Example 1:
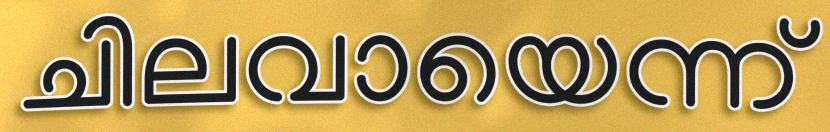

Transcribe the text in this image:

ചിലവായെന്ന്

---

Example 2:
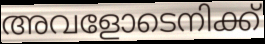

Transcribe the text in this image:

അവളോടെനിക്ക്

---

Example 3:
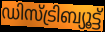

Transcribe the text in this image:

ഡിസ്ട്രിബ്യൂട്ട്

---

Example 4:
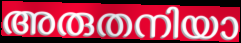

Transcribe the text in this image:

അരുതനിയാ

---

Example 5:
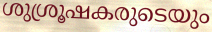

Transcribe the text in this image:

ശുശ്രൂഷകരുടെയും